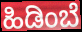
ಹಿಡಿಂಬೆ